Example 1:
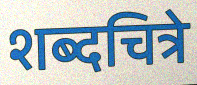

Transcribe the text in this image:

शब्दचित्रे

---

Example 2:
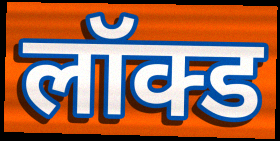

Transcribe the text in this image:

लॉक्ड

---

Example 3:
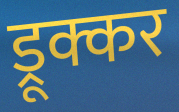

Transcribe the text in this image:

ड्रूक्कर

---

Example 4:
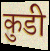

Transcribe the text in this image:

कुडी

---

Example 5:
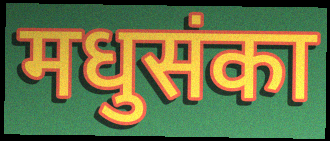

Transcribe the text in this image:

मधुसंका